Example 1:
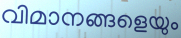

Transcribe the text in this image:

വിമാനങ്ങളെയും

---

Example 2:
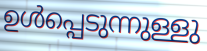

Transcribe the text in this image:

ഉൾപ്പെടുന്നുള്ളു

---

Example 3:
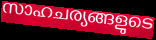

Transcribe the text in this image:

സാഹചര്യങ്ങളുടെ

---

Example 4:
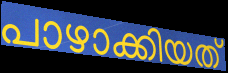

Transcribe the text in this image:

പാഴാക്കിയത്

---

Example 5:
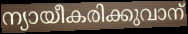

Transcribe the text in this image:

ന്യായീകരിക്കുവാന്